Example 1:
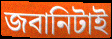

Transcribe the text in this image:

জবানিটাই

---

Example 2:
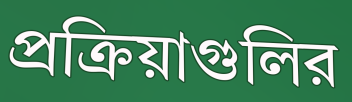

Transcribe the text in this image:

প্রক্রিয়াগুলির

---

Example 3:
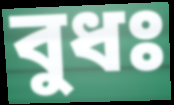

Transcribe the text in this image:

বুধঃ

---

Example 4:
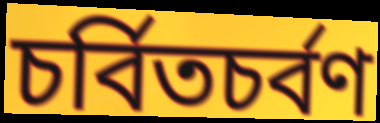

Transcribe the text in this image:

চর্বিতচর্বণ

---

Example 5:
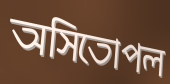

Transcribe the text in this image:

অসিতোপল